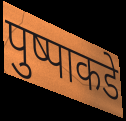
पुष्पाकडे